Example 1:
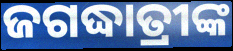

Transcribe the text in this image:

ଜଗଦ୍ଧାତ୍ରୀଙ୍କ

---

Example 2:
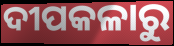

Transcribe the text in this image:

ଦୀପକଳାରୁ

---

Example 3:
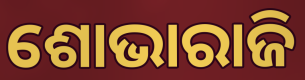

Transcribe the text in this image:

ଶୋଭାରାଜି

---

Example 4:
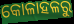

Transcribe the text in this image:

କୋଳାହଳରୁ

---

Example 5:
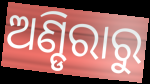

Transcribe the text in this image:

ଅଣ୍ଡିରାରୁ